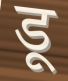
डू